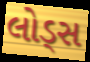
લોડ્સ